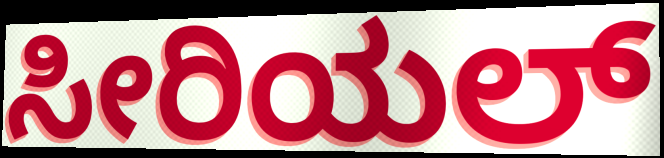
ಸೀರಿಯಲ್